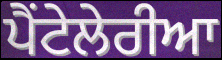
ਪੈਂਟੇਲੇਰੀਆ